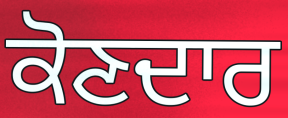
ਕੋਣਦਾਰ